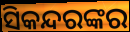
ସିକନ୍ଦରଙ୍କର